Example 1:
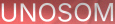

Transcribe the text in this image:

UNOSOM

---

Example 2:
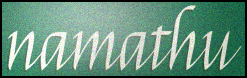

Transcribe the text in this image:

namathu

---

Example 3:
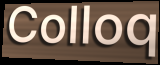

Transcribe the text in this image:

Colloq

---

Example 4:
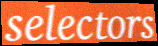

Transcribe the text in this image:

selectors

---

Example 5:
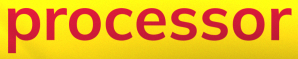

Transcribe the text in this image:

processor